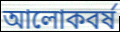
আলোকবৰ্ষ